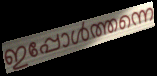
ഇപ്പോൾത്തന്നെ